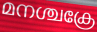
മനശ്ചക്രേ